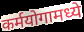
कर्मयोगामध्ये